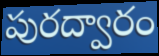
పురద్వారం